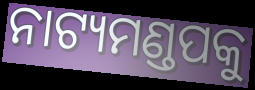
ନାଟ୍ୟମଣ୍ଡପକୁ